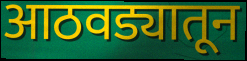
आठवड्यातून